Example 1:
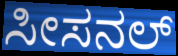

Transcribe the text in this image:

ಸೀಸನಲ್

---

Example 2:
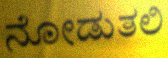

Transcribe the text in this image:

ನೋಡುತಲಿ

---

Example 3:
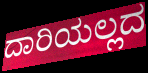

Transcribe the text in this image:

ದಾರಿಯಲ್ಲದ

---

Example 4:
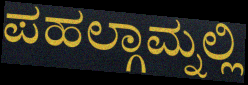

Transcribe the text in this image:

ಪಹಲ್ಗಾಮ್ನಲ್ಲಿ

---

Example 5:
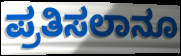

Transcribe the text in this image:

ಪ್ರತಿಸಲಾನೂ